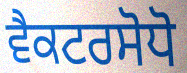
ਵੈਕਟਰਸੋਧੋ